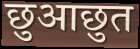
छुआछुत